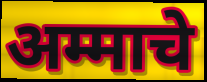
अम्माचे